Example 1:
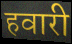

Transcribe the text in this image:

हवारी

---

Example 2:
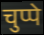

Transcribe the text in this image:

चुप्पे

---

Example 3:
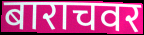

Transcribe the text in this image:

बाराचवर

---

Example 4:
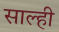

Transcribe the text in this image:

साल्ही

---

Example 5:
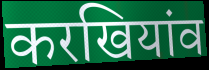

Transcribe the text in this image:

करखियांव